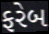
ફરેબ